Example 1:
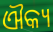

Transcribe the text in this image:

ଐକ୍ୟ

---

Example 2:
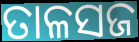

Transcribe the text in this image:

ତାଳସଜ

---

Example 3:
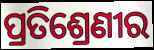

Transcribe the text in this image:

ପ୍ରତିଶ୍ରେଣୀର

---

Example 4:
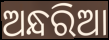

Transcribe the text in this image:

ଅନ୍ଧରିଆ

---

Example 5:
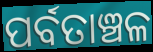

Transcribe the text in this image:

ପର୍ବତାଞ୍ଚଳ